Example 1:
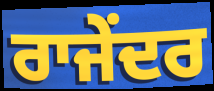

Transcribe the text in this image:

ਰਾਜੇਂਦਰ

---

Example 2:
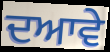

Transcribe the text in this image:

ਦਆਵੇ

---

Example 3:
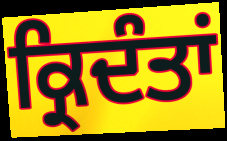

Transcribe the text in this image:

ਕ੍ਰਿਦੰਤਾਂ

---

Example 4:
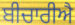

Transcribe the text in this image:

ਬੀਚਾਰੀਐ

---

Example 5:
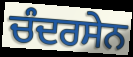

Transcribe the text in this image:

ਚੰਦਰਸੇਨ